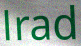
Irad